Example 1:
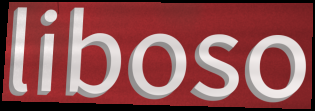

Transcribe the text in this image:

liboso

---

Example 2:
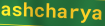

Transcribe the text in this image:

ashcharya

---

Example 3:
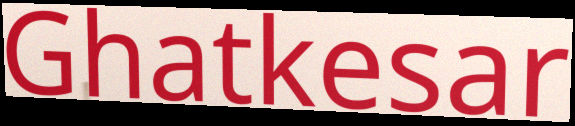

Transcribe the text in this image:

Ghatkesar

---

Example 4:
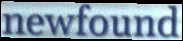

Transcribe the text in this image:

newfound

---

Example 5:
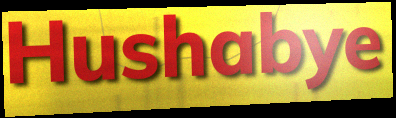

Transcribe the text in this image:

Hushabye